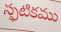
స్ఫటికము